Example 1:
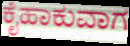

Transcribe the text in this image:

ಕೈಹಾಕುವಾಗ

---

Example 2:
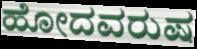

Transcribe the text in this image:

ಹೋದವರುಷ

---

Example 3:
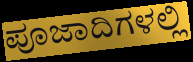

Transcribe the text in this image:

ಪೂಜಾದಿಗಳಲ್ಲಿ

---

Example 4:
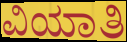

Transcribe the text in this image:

ವಿಯಾತಿ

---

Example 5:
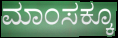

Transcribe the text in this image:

ಮಾಂಸಕ್ಕೂ